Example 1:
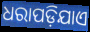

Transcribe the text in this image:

ଧରାପଡ଼ିଯାଏ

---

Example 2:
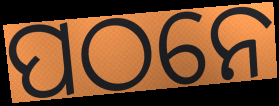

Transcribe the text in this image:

ପଠନେ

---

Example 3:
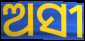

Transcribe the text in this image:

ଅସୀ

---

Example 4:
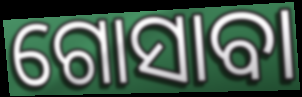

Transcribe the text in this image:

ଗୋସାବା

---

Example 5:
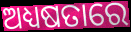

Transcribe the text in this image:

ଅଧ୍ୟଷତାରେ